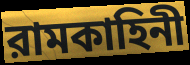
রামকাহিনী